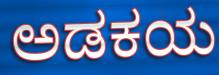
ಅಡಕಯ